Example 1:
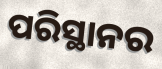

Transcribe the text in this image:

ପରିସ୍ଥାନର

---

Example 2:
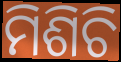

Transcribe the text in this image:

ମିଶିଚି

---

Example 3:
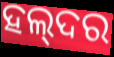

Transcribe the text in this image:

ହଲ୍‌ଦର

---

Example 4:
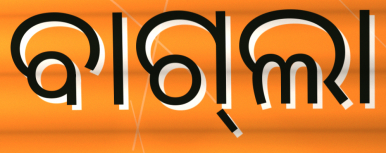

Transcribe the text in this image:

ବାଗ୍‌ଲା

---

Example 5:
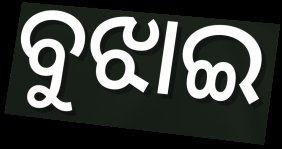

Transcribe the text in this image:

ବୁଝାଇ